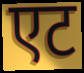
एट